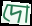
দো